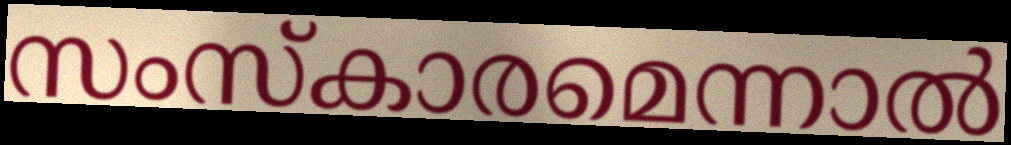
സംസ്കാരമെന്നാൽ